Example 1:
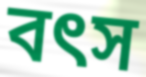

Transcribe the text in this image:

বৎস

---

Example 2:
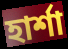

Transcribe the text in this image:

হার্শা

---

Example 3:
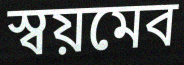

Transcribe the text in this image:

স্বয়মেব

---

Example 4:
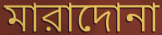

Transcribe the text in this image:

মারাদোনা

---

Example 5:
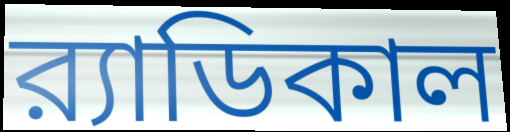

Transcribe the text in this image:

র‍্যাডিকাল